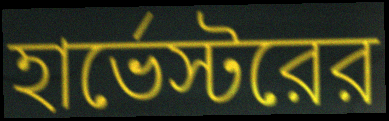
হার্ভেস্টরের